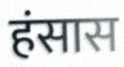
हंसास